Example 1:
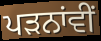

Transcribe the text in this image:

ਪੜਨਾਂਵੀਂ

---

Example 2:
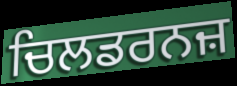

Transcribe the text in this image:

ਚਿਲਡਰਨਜ਼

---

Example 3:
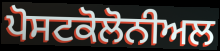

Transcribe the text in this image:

ਪੋਸਟਕੋਲੋਨੀਅਲ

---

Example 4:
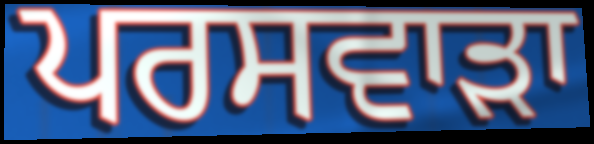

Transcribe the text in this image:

ਪਰਸਵਾੜਾ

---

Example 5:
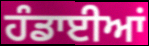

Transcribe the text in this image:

ਹੰਡਾਈਆਂ